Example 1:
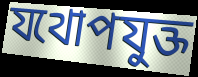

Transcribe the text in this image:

যথোপযুক্ত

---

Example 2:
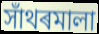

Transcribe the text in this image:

সাঁথৰমালা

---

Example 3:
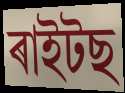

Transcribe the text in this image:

ৰাইটছ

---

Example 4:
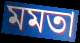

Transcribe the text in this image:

মমতা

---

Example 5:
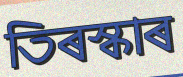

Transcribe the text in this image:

তিৰস্কাৰ